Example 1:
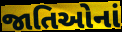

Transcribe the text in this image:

જાતિઓનાં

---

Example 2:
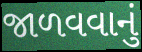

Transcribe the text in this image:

જાળવવાનું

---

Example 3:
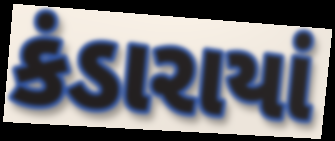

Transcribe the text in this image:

કંડારાયાં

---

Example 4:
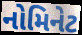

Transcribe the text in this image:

નોમિનેટ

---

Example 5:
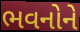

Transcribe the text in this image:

ભવનોને